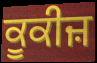
ਕੂਕੀਜ਼